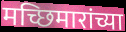
मच्छिमारांच्या